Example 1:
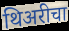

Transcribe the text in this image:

थिअरीचा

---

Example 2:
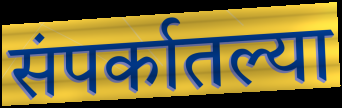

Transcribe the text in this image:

संपर्कातल्या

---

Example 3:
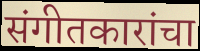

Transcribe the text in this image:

संगीतकारांचा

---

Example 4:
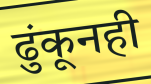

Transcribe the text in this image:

ढुंकूनही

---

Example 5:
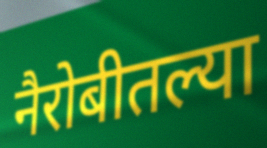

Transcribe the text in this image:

नैरोबीतल्या